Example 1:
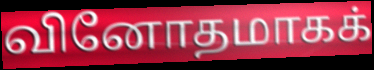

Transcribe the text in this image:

வினோதமாகக்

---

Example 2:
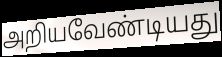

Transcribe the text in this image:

அறியவேண்டியது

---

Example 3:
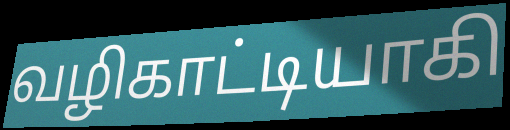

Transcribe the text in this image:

வழிகாட்டியாகி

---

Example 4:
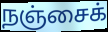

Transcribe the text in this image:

நஞ்சைக்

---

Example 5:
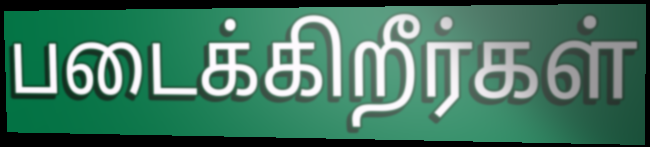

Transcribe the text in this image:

படைக்கிறீர்கள்